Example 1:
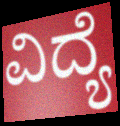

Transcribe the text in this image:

ವಿದ್ಯೆ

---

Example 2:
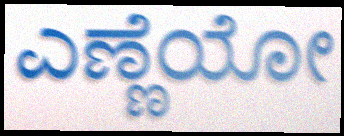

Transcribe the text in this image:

ಎಣ್ಣೆಯೋ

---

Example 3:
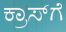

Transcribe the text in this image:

ಕ್ರಾಸ್‌ಗೆ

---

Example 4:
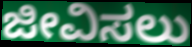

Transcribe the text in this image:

ಜೀವಿಸಲು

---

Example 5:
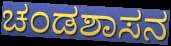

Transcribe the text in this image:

ಚಂಡಶಾಸನ